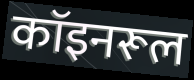
कॉइनरूल